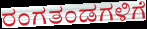
ರಂಗತಂಡಗಳಿಗೆ